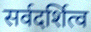
सर्वदर्शित्व